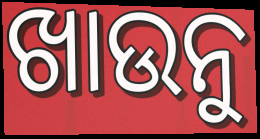
ଖାଉନୁ